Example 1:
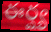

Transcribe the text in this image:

ఈర్ష్య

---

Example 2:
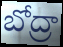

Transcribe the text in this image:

బోద్రా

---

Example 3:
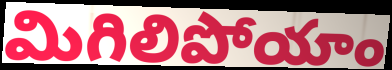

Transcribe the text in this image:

మిగిలిపోయాం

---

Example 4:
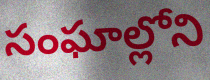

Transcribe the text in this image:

సంఘాల్లోని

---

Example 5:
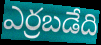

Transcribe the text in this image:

ఎర్రబడేది